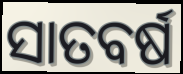
ସାତବର୍ଷ